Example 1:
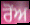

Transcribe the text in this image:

ਰੋਂਅ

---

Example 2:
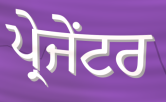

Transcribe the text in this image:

ਪ੍ਰੇਜੇਂਟਰ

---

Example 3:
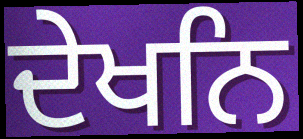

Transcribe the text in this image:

ਦੇਖਨਿ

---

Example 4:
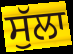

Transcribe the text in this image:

ਸੁੱਲਾ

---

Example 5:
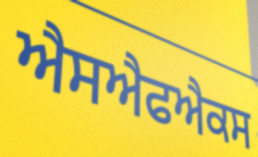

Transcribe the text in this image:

ਐਸਐਫਐਕਸ